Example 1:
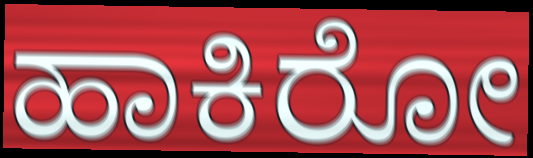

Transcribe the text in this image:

ಹಾಕಿರೋ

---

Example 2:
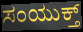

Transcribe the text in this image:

ಸಂಯುಕ್ತ್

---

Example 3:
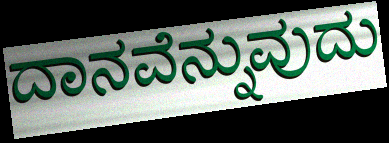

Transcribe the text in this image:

ದಾನವೆನ್ನುವುದು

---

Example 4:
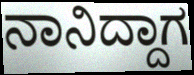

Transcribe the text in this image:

ನಾನಿದ್ದಾಗ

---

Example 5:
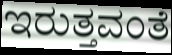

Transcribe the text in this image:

ಇರುತ್ತವಂತೆ